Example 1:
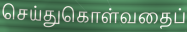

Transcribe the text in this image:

செய்துகொள்வதைப்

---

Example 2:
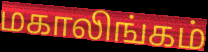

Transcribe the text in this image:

மகாலிங்கம்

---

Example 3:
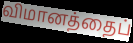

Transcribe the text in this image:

விமானத்தைப்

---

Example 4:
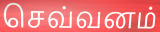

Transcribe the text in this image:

செவ்வனம்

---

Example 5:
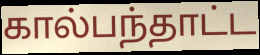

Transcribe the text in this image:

கால்பந்தாட்ட